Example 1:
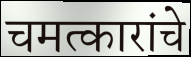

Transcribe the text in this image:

चमत्कारांचे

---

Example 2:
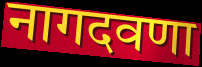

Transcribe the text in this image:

नागदवणा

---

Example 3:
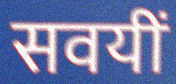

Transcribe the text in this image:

सवयीं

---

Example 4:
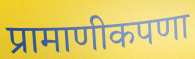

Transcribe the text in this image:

प्रामाणीकपणा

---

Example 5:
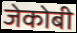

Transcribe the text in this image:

जेकोबी